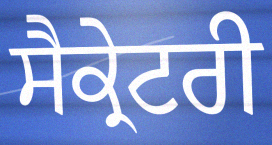
ਸੈਕ੍ਰੇਟਰੀ